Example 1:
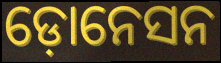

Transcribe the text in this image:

ଡ଼ୋନେସନ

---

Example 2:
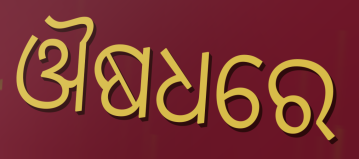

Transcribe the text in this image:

ଔଷଧରେ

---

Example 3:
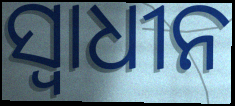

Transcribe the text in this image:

ସ୍ୱାଧୀନ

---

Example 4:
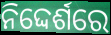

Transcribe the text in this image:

ନିଦ୍ଦେର୍ଶରେ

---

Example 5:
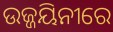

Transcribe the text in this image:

ଉଜ୍ଜୟିନୀରେ